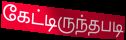
கேட்டிருந்தபடி